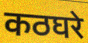
कठघरे